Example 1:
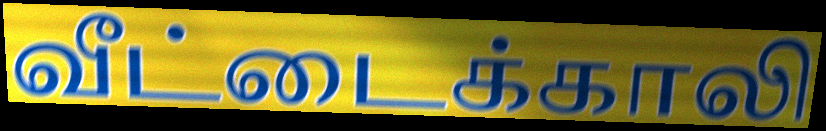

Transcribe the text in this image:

வீட்டைக்காலி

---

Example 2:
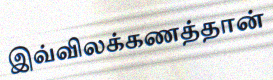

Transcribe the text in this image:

இவ்விலக்கணத்தான்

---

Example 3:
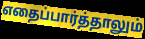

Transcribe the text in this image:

எதைப்பார்த்தாலும்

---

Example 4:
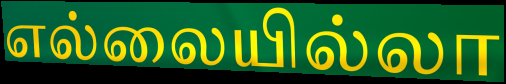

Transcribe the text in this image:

எல்லையில்லா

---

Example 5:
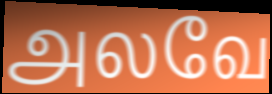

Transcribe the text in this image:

அலவே